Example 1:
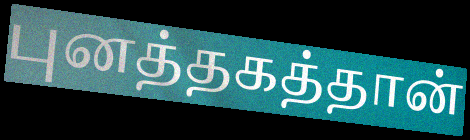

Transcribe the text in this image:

புனத்தகத்தான்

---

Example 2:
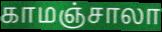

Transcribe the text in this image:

காமஞ்சாலா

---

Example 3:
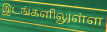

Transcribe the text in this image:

இடங்களிலுள்ள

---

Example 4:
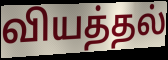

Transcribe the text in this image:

வியத்தல்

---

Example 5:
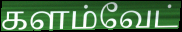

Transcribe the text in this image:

களம்வேட்